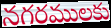
నగరములకు